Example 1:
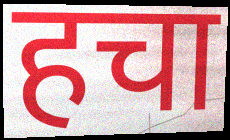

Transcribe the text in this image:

हचा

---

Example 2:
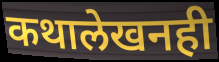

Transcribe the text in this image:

कथालेखनही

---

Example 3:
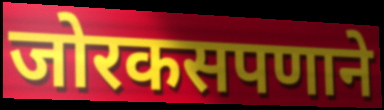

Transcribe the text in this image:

जोरकसपणाने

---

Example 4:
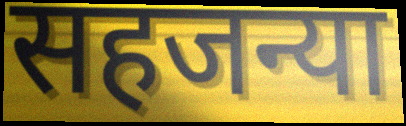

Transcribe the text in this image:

सहजन्या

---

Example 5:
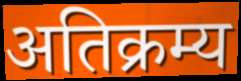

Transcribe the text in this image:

अतिक्रम्य